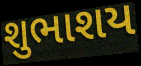
શુભાશય